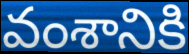
వంశానికి